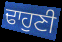
ਢਾਹੁਣੀ